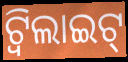
ଟ୍ୱିଲାଇଟ୍